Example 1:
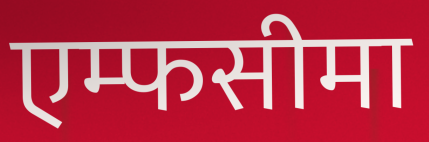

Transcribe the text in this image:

एम्फसीमा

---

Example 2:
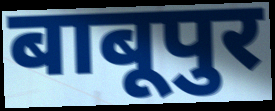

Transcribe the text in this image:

बाबूपुर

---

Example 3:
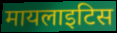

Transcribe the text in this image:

मायलाइटिस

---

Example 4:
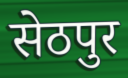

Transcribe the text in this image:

सेठपुर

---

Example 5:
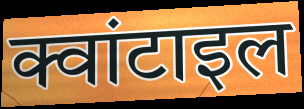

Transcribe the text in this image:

क्वांटाइल